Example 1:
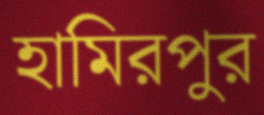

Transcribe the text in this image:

হামিরপুর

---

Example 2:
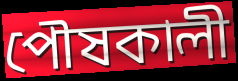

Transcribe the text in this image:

পৌষকালী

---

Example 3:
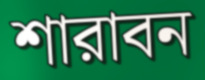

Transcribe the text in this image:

শারাবন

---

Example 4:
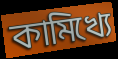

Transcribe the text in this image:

কামিখ্যে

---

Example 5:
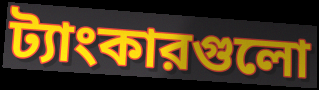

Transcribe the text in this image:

ট্যাংকারগুলো